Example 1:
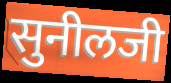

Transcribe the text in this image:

सुनीलजी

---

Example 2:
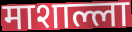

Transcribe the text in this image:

माशाल्ला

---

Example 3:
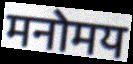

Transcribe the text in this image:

मनोमय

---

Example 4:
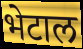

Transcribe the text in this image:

भेटाल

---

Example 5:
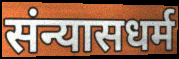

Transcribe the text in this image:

संन्यासधर्म